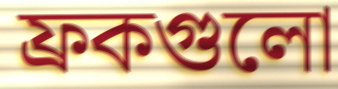
ফ্রকগুলো